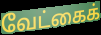
வேட்கைக்